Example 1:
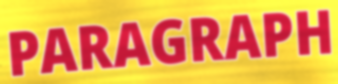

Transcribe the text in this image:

PARAGRAPH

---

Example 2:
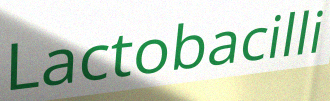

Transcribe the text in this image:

Lactobacilli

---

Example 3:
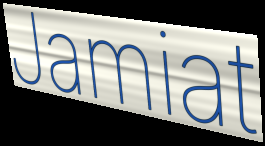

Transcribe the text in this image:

Jamiat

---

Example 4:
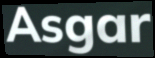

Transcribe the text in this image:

Asgar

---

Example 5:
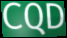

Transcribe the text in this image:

CQD